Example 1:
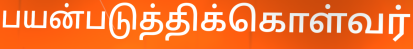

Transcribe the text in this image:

பயன்படுத்திக்கொள்வர்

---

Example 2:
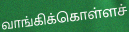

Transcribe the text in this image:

வாங்கிக்கொள்ளச்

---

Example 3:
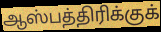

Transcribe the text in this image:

ஆஸ்பத்திரிக்குக்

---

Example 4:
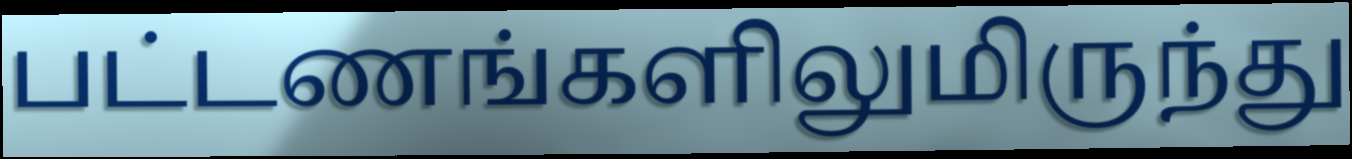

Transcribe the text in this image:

பட்டணங்களிலுமிருந்து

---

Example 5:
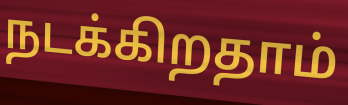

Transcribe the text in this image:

நடக்கிறதாம்